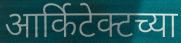
आर्किटेक्टच्या